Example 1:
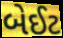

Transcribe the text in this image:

બેઈટ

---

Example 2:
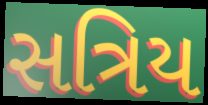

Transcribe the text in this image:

સત્રિય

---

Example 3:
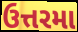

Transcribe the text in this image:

ઉત્તરમા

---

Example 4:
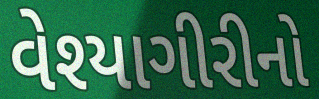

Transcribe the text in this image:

વેશ્યાગીરીનો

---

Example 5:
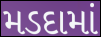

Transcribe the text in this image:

મડદામાં